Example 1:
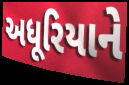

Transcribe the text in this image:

અધૂરિયાને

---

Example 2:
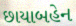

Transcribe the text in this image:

છાયાબહેન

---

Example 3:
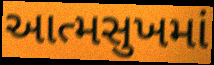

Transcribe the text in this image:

આત્મસુખમાં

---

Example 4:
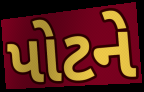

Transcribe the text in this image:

પોટને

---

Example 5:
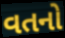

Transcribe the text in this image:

વતનો